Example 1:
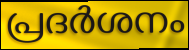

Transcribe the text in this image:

പ്രദർശനം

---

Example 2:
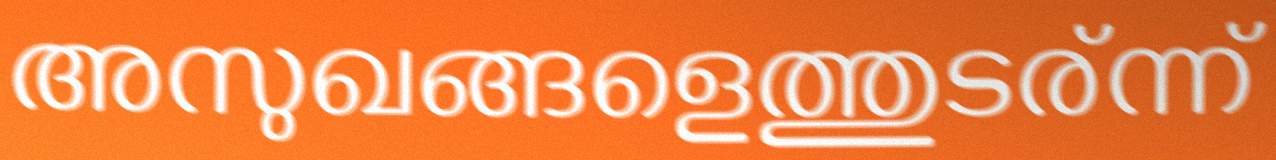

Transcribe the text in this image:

അസുഖങ്ങളെത്തുടര്ന്ന്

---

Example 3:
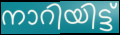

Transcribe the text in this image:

നാറിയിട്ട്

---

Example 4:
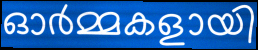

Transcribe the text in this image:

ഓർമ്മകളായി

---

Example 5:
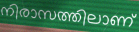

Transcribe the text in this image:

നിരാസത്തിലാണ്